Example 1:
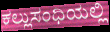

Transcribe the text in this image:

ಕಲ್ಲುಸಂಧಿಯಲ್ಲಿ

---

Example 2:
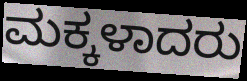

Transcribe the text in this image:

ಮಕ್ಕಳಾದರು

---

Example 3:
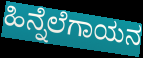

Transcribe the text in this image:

ಹಿನ್ನೆಲೆಗಾಯನ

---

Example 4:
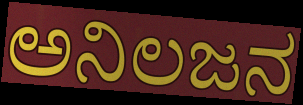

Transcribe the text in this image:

ಅನಿಲಜನ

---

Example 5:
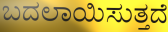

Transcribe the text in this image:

ಬದಲಾಯಿಸುತ್ತದೆ